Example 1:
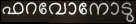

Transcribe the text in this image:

ഫറവോനോടു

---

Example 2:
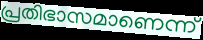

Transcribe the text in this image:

പ്രതിഭാസമാണെന്ന്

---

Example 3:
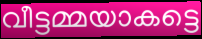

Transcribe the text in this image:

വീട്ടമ്മയാകട്ടെ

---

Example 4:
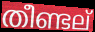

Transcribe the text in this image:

തീണ്ടല്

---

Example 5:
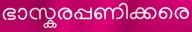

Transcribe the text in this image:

ഭാസ്കരപ്പണിക്കരെ